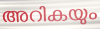
അറികയും